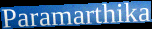
Paramarthika